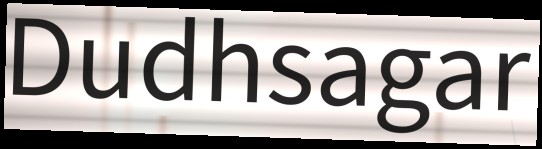
Dudhsagar